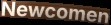
Newcomen